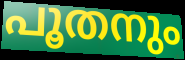
പൂതനും